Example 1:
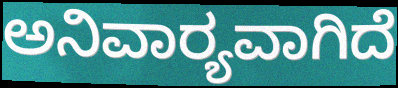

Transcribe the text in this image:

ಅನಿವಾರ‍್ಯವಾಗಿದೆ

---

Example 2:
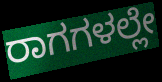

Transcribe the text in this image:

ರಾಗಗಳಲ್ಲೇ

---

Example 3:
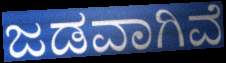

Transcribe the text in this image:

ಜಡವಾಗಿವೆ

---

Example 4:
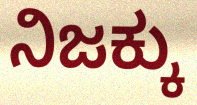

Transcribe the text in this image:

ನಿಜಕ್ಕು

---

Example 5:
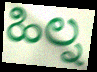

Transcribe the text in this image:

ಹಿಲ್ನ